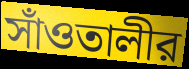
সাঁওতালীর